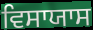
ਵਿਸਾਯਾਸ